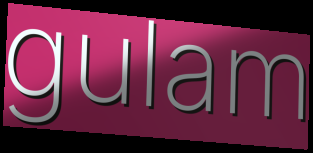
gulam